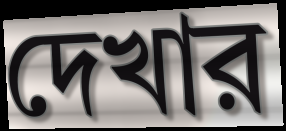
দেখার